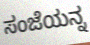
ಸಂಜೆಯನ್ನ